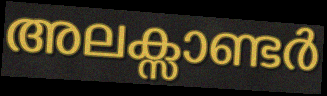
അലക്സാണ്ടർ